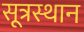
सूत्रस्थान